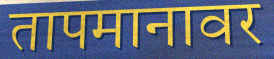
तापमानावर